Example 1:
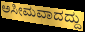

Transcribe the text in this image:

ಅಸೀಮವಾದದ್ದು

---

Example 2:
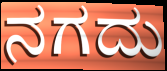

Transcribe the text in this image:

ನಗದು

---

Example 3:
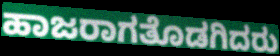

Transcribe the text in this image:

ಹಾಜರಾಗತೊಡಗಿದರು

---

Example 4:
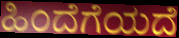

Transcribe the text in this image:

ಹಿಂದೆಗೆಯದೆ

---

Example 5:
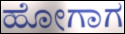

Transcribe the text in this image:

ಹೋಗಾಗ